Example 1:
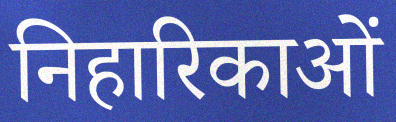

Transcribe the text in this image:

निहारिकाओं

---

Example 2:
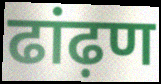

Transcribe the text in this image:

ढांढ़ण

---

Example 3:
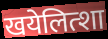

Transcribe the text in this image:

खयेलित्शा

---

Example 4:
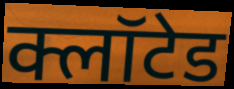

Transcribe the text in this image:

क्लॉटेड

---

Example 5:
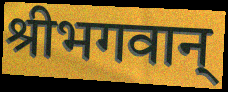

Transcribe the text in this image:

श्रीभगवान्